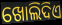
ଖୋଲିଦିଏ